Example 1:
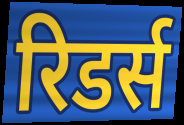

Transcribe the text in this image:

रिडर्स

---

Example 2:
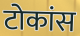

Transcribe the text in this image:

टोकांस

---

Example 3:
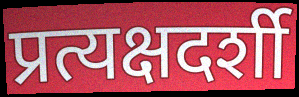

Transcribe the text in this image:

प्रत्यक्षदर्शी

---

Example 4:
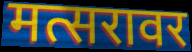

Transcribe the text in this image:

मत्सरावर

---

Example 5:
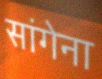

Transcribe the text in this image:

सांगेना